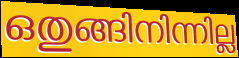
ഒതുങ്ങിനിന്നില്ല